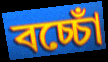
বচ্চোঁ